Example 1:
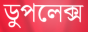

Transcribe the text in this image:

ডুপলেক্স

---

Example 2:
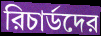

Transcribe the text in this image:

রিচার্ডদের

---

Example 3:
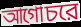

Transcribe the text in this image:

আগোচরে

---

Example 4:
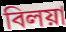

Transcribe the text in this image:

বিলয়া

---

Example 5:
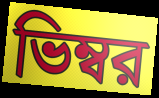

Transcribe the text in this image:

ভিম্বর